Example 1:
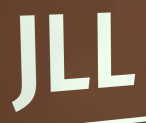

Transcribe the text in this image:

JLL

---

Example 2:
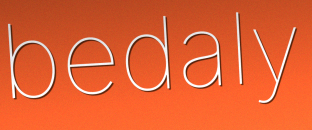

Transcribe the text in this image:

bedaly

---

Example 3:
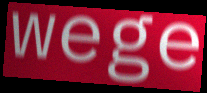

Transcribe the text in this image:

wege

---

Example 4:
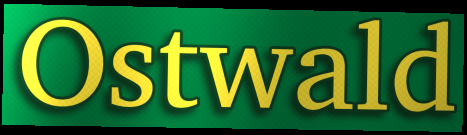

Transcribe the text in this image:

Ostwald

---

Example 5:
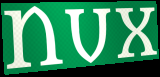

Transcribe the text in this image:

nux